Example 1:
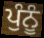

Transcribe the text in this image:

ਪੁੰਨੂੰ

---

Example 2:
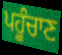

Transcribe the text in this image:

ਪਹੂੰਚਾਣ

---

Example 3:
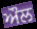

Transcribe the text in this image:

ਔਲ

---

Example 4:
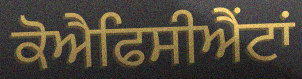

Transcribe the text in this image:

ਕੋਐਫਿਸੀਐਂਟਾਂ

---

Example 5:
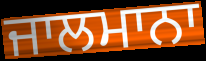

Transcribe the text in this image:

ਜਾਲਮਾਨਾ